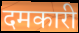
दमकारी